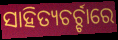
ସାହିତ୍ୟଚର୍ଚ୍ଚାରେ